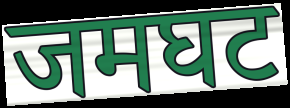
जमघट